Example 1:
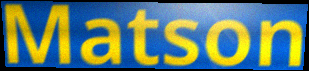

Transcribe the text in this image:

Matson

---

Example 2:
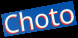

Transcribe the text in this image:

Choto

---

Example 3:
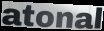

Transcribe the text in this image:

atonal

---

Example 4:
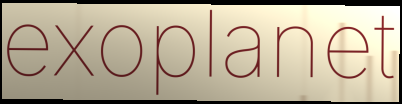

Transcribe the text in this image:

exoplanet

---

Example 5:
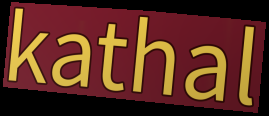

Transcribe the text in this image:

kathal